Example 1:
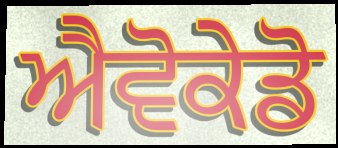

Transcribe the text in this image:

ਐਵੋਕੇਡੋ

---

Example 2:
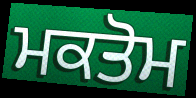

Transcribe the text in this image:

ਮਕਤੋਮ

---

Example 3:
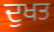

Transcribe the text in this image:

ਦੁਖਤ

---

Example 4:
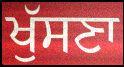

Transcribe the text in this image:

ਖੁੱਸਣਾ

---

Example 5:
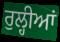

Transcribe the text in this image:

ਰੁਲ੍ਹੀਆਂ